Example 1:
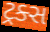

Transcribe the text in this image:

ટ્રક્સ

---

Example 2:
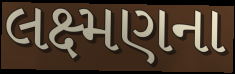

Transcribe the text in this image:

લક્ષ્મણના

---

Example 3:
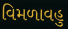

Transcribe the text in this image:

વિમળાવહુ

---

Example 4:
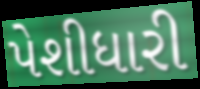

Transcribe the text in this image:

પેશીધારી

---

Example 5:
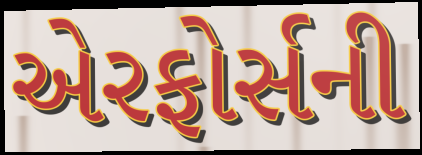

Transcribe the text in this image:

એરફોર્સની